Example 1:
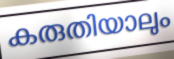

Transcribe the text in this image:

കരുതിയാലും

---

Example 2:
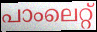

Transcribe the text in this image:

പാംലെറ്റ്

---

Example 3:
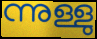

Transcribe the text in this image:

ന്നുള്ളു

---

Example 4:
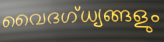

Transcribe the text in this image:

വൈദഗ്ധ്യങ്ങളും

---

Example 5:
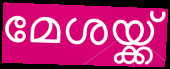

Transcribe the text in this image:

മേശയ്ക്ക്